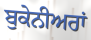
ਬੁਕੇਨੀਅਰਾਂ